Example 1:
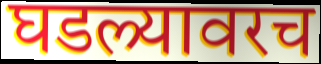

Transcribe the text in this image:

घडल्यावरच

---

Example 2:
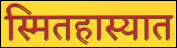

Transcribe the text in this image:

स्मितहास्यात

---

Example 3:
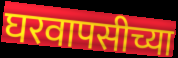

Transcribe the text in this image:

घरवापसीच्या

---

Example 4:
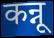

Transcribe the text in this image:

कन्नू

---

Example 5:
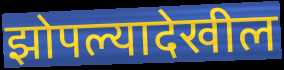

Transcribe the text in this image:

झोपल्यादेखील